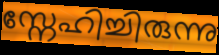
സ്നേഹിച്ചിരുന്നു